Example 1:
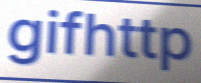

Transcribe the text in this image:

gifhttp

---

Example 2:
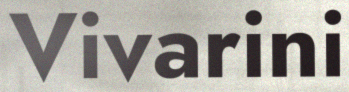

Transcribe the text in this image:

Vivarini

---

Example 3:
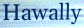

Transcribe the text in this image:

Hawally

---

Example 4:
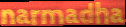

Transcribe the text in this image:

narmadha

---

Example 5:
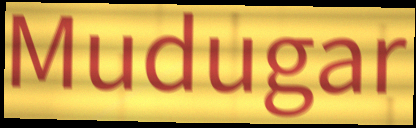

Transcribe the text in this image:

Mudugar